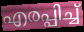
എരപ്പിച്ച്